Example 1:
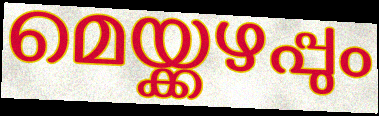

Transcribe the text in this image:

മെയ്ക്കഴപ്പും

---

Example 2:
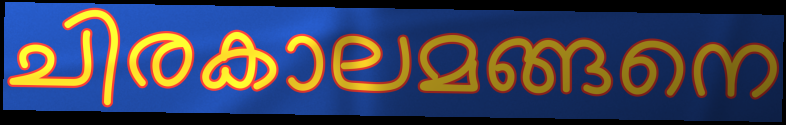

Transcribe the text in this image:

ചിരകാലമങ്ങനെ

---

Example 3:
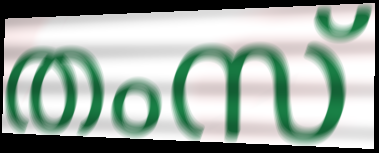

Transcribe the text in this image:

തംസ്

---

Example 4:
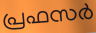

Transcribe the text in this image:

പ്രഫസർ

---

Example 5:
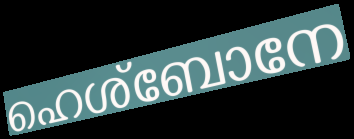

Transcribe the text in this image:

ഹെശ്ബോനേ